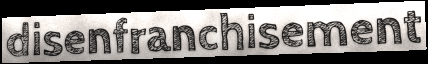
disenfranchisement